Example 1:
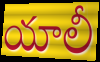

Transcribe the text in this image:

యాలీ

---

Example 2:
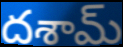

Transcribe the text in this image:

దశామ్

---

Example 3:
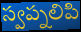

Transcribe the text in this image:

స్వప్నలిపి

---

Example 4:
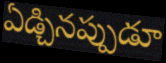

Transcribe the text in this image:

ఏడ్చినప్పుడూ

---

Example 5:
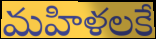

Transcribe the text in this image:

మహిళలకే